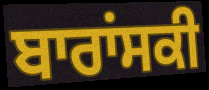
ਬਾਰਾਂਸਕੀ